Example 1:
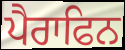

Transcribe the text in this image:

ਪੈਰਾਫਿਨ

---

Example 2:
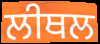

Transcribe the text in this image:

ਲੀਥਲ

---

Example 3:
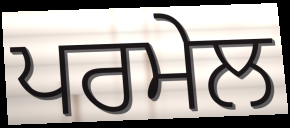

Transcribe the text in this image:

ਪਰਮੇਲ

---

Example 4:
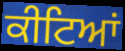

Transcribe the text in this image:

ਕੀਟਿਆਂ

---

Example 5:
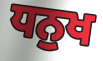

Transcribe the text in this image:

ਧਨੁਖ